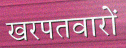
खरपतवारों